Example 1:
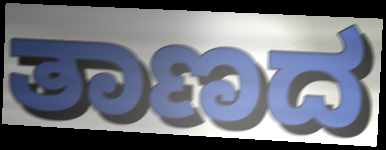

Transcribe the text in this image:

ತಾಣದ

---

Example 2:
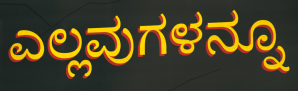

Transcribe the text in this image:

ಎಲ್ಲವುಗಳನ್ನೂ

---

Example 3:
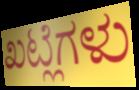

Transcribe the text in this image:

ಖಟ್ಲೆಗಳು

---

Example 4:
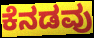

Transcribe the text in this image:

ಕೆನಡವು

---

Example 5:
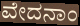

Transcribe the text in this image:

ವೇದನಾಂ